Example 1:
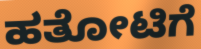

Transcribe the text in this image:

ಹತೋಟಿಗೆ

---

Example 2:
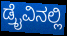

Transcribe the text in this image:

ಡ್ರೈವಿನಲ್ಲಿ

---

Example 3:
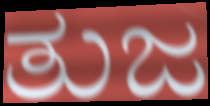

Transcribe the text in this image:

ತುಜ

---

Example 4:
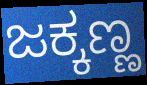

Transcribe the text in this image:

ಜಕ್ಕಣ್ಣ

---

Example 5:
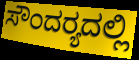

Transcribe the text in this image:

ಸೌಂದರ‍್ಯದಲ್ಲಿ